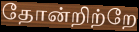
தோன்றிற்றே